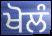
ਖੋਲੰ